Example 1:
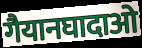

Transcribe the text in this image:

गैयानघादाओ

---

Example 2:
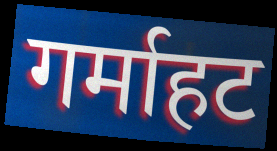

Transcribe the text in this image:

गर्माहट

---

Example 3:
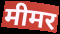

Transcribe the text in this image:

मीमर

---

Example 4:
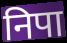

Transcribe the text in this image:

निपा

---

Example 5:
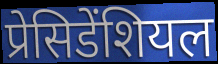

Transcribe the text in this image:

प्रेसिडेंशियल